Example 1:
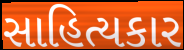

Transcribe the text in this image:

સાહિત્યકાર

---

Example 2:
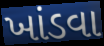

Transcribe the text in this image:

ખાંડવા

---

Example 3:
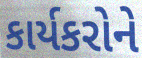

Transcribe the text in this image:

કાર્યકરોને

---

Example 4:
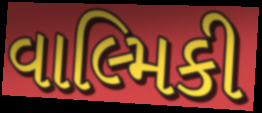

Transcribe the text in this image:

વાલ્મિકી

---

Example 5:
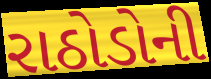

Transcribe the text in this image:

રાઠોડોની